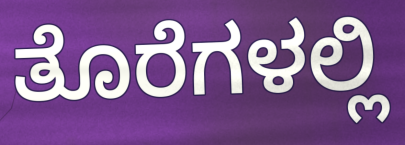
ತೊರೆಗಳಲ್ಲಿ